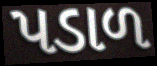
પડાળ